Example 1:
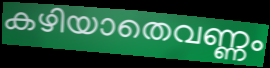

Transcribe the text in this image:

കഴിയാതെവണ്ണം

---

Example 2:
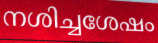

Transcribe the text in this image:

നശിച്ചശേഷം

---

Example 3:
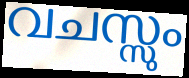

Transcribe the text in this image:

വചസ്സും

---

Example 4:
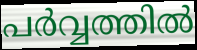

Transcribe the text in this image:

പർവ്വത്തിൽ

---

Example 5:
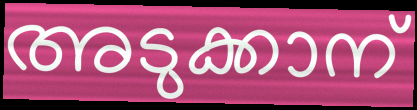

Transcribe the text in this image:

അടുക്കാന്